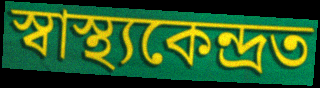
স্বাস্থ্যকেন্দ্ৰত